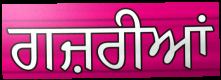
ਗਜ਼ਰੀਆਂ